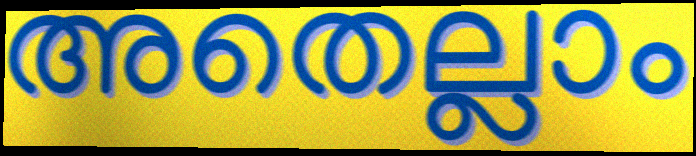
അതെല്ലാം